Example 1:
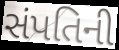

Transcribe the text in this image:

સંપતિની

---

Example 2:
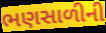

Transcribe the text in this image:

ભણસાળીની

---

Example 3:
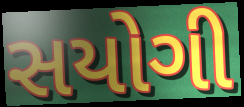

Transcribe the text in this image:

સયોગી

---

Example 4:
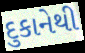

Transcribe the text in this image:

દુકાનેથી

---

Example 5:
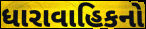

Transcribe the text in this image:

ધારાવાહિકનો